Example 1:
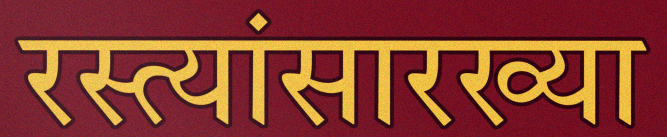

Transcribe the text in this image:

रस्त्यांसारख्या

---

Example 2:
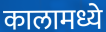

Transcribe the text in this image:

कालामध्ये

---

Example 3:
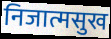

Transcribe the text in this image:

निजात्मसुख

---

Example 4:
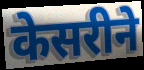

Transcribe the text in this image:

केसरीने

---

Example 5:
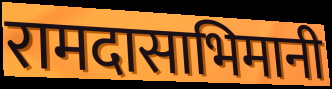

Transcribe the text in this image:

रामदासाभिमानी